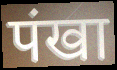
पंखा